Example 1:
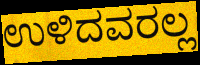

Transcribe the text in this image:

ಉಳಿದವರಲ್ಲ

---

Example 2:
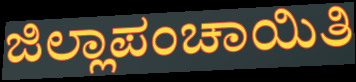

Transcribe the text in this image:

ಜಿಲ್ಲಾಪಂಚಾಯಿತಿ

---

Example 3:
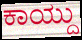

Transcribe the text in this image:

ಕಾಯ್ದು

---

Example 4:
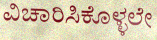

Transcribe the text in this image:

ವಿಚಾರಿಸಿಕೊಳ್ಳಲೇ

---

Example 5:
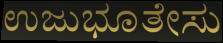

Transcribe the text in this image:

ಉಜುಭೂತೇಸು